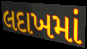
લદાખમાં